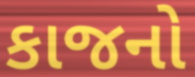
કાજનો